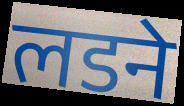
लडने